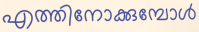
എത്തിനോക്കുമ്പോൾ